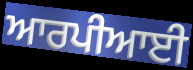
ਆਰਪੀਆਈ